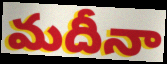
మదీనా